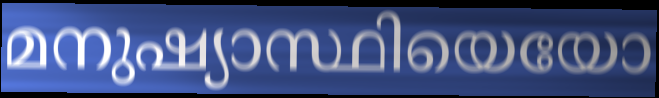
മനുഷ്യാസ്ഥിയെയോ